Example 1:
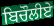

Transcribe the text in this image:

ਬਿਚੌਲੀਏ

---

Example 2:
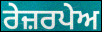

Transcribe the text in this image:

ਰੇਜ਼ਰਪੇਅ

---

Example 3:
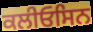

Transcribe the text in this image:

ਕਲੀਓਸਿਨ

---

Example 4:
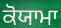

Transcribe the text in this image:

ਕੋਯਾਮਾ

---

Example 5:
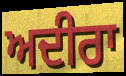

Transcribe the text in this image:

ਅਦੀਰਾ